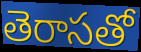
తెరాసతో